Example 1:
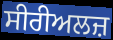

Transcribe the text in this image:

ਸੀਰੀਅਲਜ਼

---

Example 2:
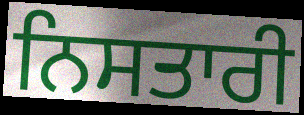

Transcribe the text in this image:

ਨਿਸਤਾਰੀ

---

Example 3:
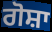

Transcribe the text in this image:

ਗੋਸ਼ਾ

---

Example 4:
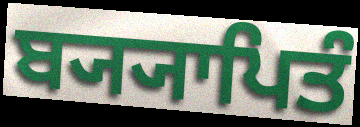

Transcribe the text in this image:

ਬ੍ਯ੍ਯਾਪਿਤੰ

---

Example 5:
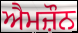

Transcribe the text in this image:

ਐਮਜ਼ੌਨ